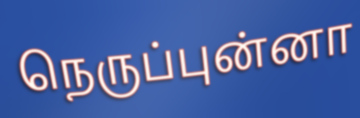
நெருப்புன்னா